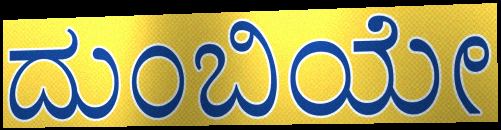
ದುಂಬಿಯೇ